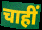
चाहीं